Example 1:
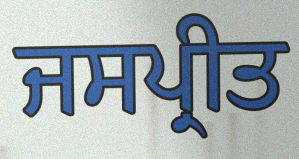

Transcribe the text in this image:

ਜਸਪ੍ਰੀਤ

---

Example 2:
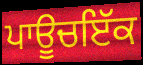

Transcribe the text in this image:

ਪਾਊਚਇੱਕ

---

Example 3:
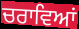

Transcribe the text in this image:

ਚਰਾਵਿਆਂ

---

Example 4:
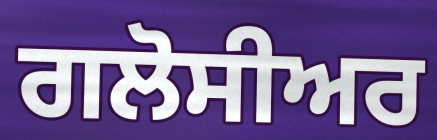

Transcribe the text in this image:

ਗਲੋਸੀਅਰ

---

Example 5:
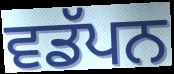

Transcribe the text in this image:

ਵਡੱਪਨ